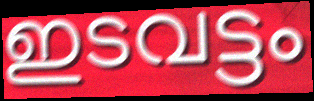
ഇടവട്ടം